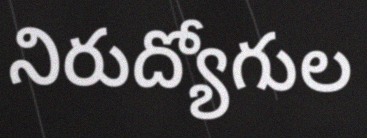
నిరుద్యోగుల